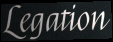
Legation